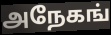
அநேகங்